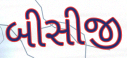
બીસીજી